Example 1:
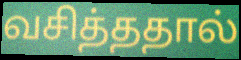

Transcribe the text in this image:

வசித்ததால்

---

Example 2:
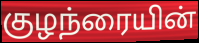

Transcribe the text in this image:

குழந்ரையின்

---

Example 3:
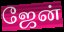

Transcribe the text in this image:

ஜேன்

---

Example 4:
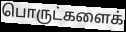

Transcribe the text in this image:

பொருட்களைக்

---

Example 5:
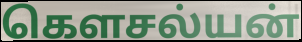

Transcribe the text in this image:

கௌசல்யன்